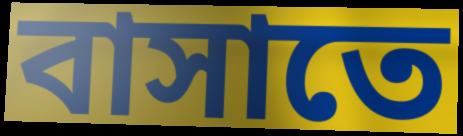
বাসাতে